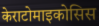
केराटोमाइकोसिस